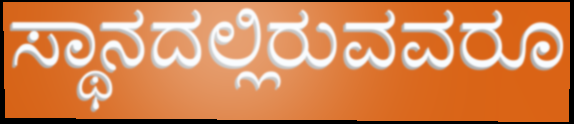
ಸ್ಥಾನದಲ್ಲಿರುವವರೂ